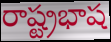
రాష్ట్రభాష